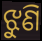
ଝୁଣି